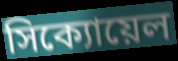
সিক্যোয়েল